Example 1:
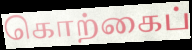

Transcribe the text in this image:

கொற்கைப்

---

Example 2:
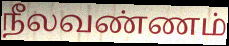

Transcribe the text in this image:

நீலவண்ணம்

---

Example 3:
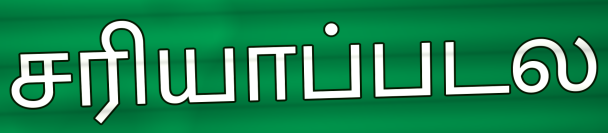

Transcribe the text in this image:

சரியாப்படல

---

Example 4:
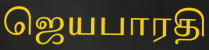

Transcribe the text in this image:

ஜெயபாரதி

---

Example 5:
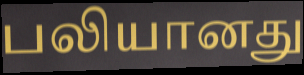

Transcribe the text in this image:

பலியானது